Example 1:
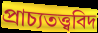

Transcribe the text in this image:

প্রাচ্যতত্ত্ববিদ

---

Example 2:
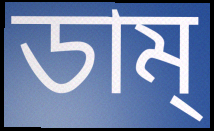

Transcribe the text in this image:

ডাম্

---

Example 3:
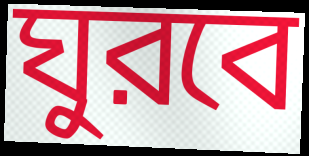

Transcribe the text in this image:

ঘুরবে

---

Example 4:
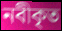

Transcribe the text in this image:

নবীকৃত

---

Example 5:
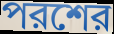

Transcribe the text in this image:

পরশের